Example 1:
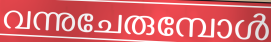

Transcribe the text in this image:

വന്നുചേരുമ്പോൾ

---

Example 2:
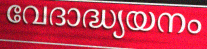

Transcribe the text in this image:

വേദാദ്ധ്യയനം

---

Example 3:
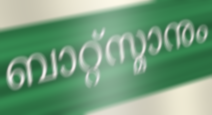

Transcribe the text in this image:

ബാറ്റ്സ്മാനും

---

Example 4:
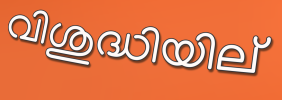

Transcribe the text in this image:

വിശുദ്ധിയില്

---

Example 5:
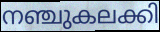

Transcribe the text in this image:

നഞ്ചുകലക്കി